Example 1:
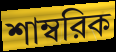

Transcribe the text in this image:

শাম্বরিক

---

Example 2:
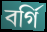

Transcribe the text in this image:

বর্গি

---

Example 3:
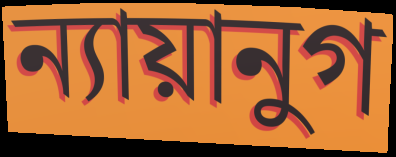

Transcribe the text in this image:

ন্যায়ানুগ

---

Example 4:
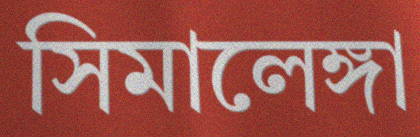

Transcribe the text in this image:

সিমালেঙ্গা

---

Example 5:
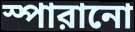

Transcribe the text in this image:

স্পারানো